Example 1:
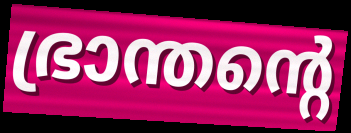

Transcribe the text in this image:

ഭ്രാന്തന്റെ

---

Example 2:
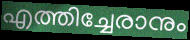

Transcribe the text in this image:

എത്തിച്ചേരാനും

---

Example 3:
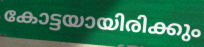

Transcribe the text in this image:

കോട്ടയായിരിക്കും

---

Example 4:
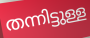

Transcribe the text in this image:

തന്നിട്ടുള്ള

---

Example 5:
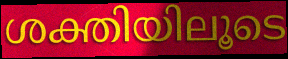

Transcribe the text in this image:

ശക്തിയിലൂടെ